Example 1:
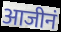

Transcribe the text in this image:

आजीनं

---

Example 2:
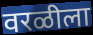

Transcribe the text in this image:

वरळीला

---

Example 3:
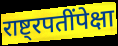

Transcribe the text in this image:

राष्ट्रपतींपेक्षा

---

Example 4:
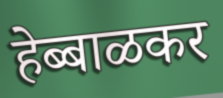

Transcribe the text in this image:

हेब्बाळकर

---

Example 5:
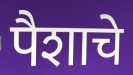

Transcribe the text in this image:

पैशाचे